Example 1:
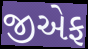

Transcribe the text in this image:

જીએફ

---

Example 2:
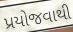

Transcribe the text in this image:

પ્રયોજવાથી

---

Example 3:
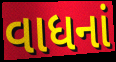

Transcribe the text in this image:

વાધનાં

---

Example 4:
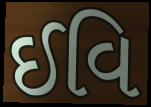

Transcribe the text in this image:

ઈવિ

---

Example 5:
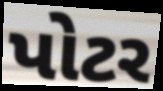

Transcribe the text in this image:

પોટર